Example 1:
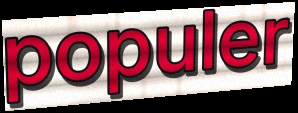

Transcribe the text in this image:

populer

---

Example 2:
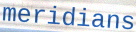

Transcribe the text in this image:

meridians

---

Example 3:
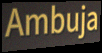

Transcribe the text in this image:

Ambuja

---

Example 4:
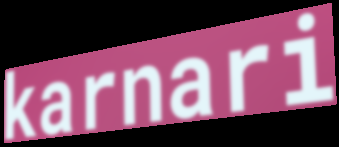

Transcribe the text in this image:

karnari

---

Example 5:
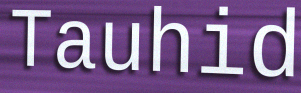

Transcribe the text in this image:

Tauhid